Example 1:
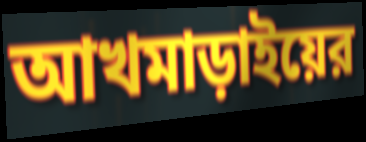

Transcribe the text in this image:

আখমাড়াইয়ের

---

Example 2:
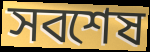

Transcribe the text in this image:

সবশেষ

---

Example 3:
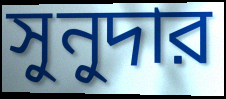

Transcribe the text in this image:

সুনুদার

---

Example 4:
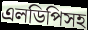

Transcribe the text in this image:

এলডিপিসহ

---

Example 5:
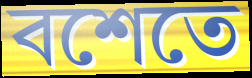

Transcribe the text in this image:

বশেতে